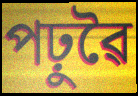
পঢ়ুৱৈ